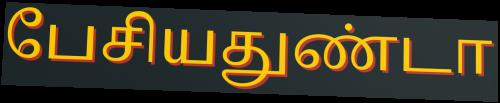
பேசியதுண்டா